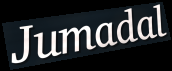
Jumadal